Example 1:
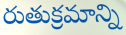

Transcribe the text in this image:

రుతుక్రమాన్ని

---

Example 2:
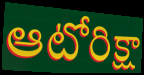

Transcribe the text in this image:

ఆటోరిక్షా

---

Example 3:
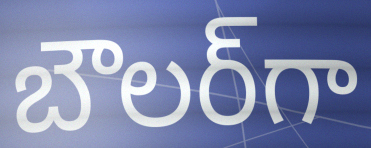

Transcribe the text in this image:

బౌలర్‌గా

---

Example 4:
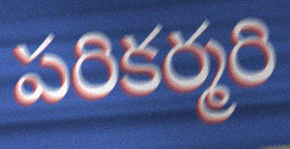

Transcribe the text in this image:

పరికర్మరి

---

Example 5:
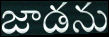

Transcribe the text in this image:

జాడను